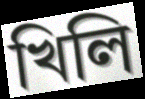
খিলি